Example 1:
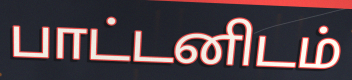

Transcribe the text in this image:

பாட்டனிடம்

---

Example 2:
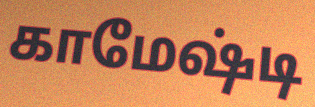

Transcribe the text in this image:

காமேஷ்டி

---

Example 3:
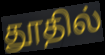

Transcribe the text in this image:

தூதில்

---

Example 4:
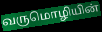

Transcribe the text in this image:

வருமொழியின்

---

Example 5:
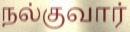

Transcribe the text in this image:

நல்குவார்